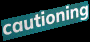
cautioning